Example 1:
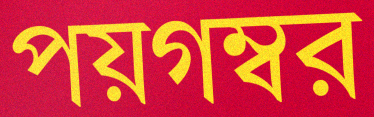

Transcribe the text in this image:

পয়গম্বর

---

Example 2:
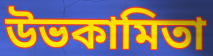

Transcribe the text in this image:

উভকামিতা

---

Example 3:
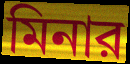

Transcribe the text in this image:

মিনার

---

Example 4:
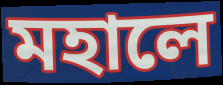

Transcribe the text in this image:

মহালে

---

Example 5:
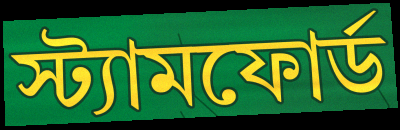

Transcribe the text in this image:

স্ট্যামফোর্ড